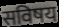
सविषय